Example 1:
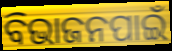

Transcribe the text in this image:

ବିଭାଜନପାଇଁ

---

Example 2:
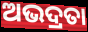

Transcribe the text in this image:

ଅଭଦ୍ରତା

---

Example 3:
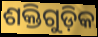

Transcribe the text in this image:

ଶକ୍ତିଗୁଡ଼ିକ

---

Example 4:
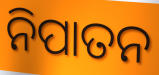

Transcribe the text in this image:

ନିପାତନ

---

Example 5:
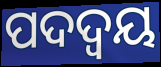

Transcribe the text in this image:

ପଦଦ୍ଵୟ